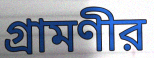
গ্রামণীর